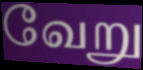
வேறு